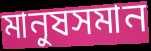
মানুষসমান